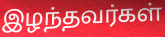
இழந்தவர்கள்